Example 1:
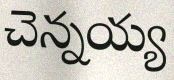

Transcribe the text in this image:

చెన్నయ్య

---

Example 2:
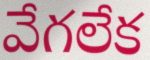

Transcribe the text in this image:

వేగలేక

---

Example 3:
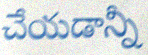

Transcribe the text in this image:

చేయడాన్నీ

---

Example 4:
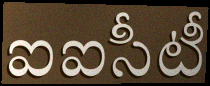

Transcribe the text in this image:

ఐఐసీటీ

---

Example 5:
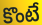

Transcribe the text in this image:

కొంటే